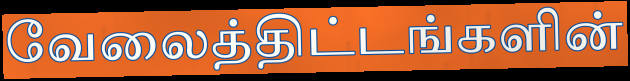
வேலைத்திட்டங்களின்